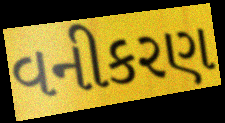
વનીકરણ